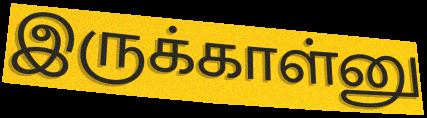
இருக்காள்னு